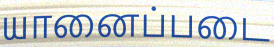
யானைப்படை